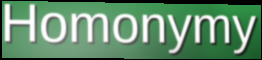
Homonymy